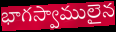
భాగస్వాములైన